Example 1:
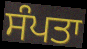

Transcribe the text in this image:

ਸੰਪਤਾ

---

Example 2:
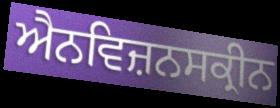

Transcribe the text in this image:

ਐਨਵਿਜ਼ਨਸਕ੍ਰੀਨ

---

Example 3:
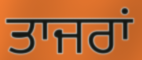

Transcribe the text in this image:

ਤਾਜਰਾਂ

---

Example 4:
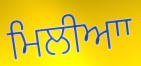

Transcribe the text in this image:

ਮਿਲੀਆਾ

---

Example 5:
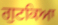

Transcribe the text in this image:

ਗੁਟਕਿਆ